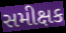
સમીક્ષક